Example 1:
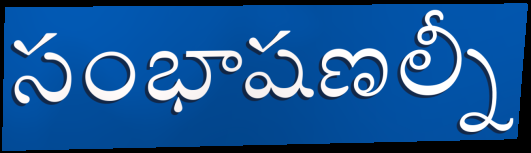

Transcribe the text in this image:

సంభాషణల్నీ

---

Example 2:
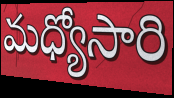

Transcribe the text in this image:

మధ్యోసారి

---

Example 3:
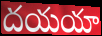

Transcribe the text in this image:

దయయా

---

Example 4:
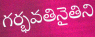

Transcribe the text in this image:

గర్భవతినైతిని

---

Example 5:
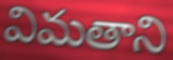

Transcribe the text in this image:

విమతాని